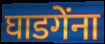
घाडगेंना